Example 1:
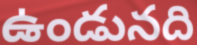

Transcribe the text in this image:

ఉండునది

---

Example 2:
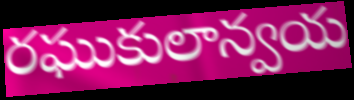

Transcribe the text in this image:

రఘుకులాన్వయ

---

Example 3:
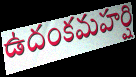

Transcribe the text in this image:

ఉదంకమహర్షి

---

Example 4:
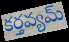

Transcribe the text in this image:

కర్తవ్యమ్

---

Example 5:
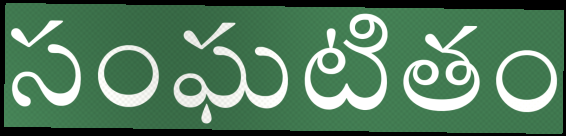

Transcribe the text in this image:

సంఘటితం